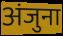
अंजुना